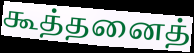
கூத்தனைத்